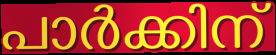
പാർക്കിന്